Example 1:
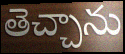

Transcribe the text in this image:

తెచ్చాను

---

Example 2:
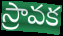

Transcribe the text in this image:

స్రావక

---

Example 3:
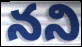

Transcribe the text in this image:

నని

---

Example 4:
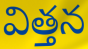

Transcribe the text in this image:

విత్తన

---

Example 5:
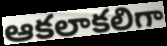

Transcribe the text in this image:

ఆకలాకలిగా